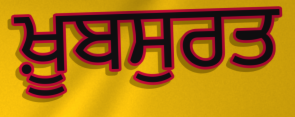
ਖ਼ੂਬਸੁਰਤ